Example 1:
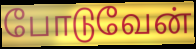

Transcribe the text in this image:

போடுவேன்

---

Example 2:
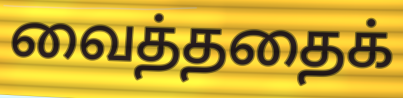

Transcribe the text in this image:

வைத்ததைக்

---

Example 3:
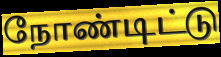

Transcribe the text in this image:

நோண்டிட்டு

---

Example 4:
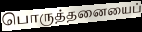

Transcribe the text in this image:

பொருத்தனையைப்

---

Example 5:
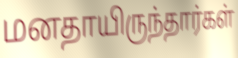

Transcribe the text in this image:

மனதாயிருந்தார்கள்